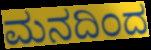
ಮನದಿಂದ